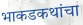
भाकडकथांचा